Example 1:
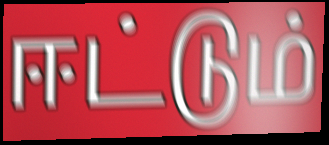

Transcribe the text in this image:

ஈட்டும்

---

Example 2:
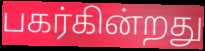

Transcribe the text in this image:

பகர்கின்றது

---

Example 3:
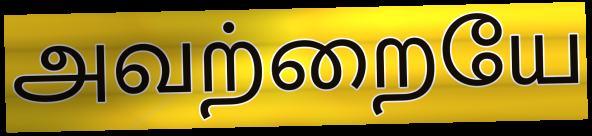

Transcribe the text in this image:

அவற்றையே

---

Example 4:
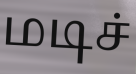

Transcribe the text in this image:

மடிச்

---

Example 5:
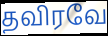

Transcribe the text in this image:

தவிரவே